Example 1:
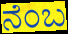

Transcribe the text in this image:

ನೆಂಬ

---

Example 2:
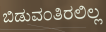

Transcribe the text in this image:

ಬಿಡುವಂತಿರಲಿಲ್ಲ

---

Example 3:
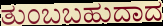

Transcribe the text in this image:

ತುಂಬಬಹುದಾದ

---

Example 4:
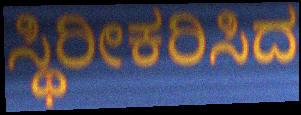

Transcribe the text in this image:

ಸ್ಥಿರೀಕರಿಸಿದ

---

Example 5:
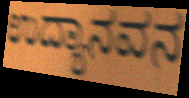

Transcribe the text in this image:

ಉದ್ಯಾನವನ